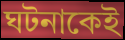
ঘটনাকেই